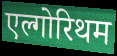
एल्गोरिथम